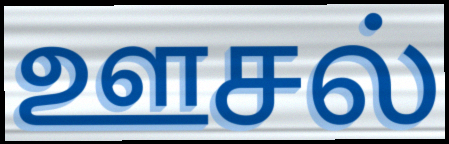
ஊசல்